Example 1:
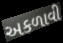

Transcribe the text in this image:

અકળાવી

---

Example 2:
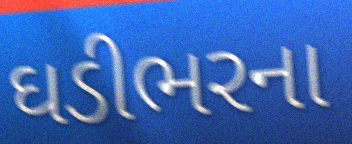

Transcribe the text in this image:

ઘડીભરના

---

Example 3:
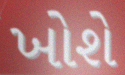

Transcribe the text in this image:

ખોશે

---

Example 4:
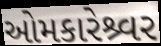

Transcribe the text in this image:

ઓમકારેશ્ર્વર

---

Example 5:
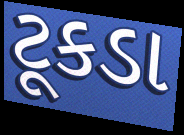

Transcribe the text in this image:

ટૂકડા